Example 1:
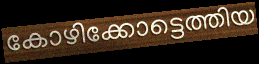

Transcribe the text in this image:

കോഴിക്കോട്ടെത്തിയ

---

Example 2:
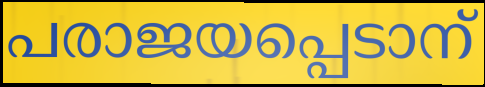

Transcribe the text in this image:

പരാജയപ്പെടാന്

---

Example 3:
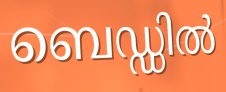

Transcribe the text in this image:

ബെഡ്ഡിൽ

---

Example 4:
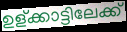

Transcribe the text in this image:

ഉള്ക്കാട്ടിലേക്ക്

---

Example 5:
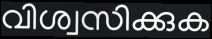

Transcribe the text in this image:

വിശ്വസിക്കുക